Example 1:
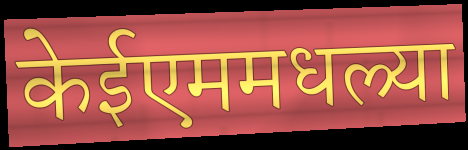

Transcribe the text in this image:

केईएममधल्या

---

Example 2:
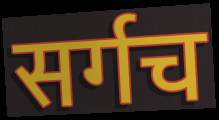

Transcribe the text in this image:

सर्गच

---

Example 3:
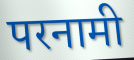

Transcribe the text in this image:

परनामी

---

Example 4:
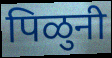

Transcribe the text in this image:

पिळुनी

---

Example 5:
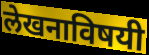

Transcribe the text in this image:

लेखनाविषयी